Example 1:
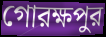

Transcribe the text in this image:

গোরক্ষপুর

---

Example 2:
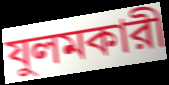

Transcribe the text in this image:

যুলমকারী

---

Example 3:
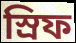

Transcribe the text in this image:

স্রিফ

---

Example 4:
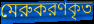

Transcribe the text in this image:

মেরুকরণকৃত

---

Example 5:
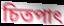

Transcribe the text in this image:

চিতপাৎ